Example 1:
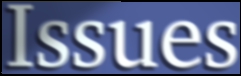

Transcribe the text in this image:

Issues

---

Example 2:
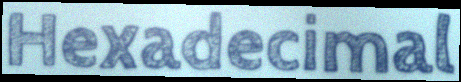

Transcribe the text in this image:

Hexadecimal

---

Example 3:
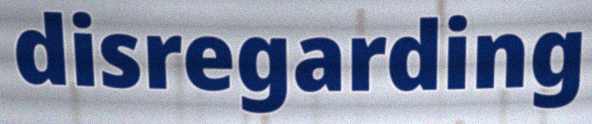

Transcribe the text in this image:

disregarding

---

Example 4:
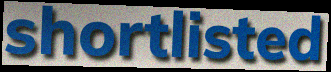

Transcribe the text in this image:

shortlisted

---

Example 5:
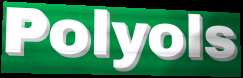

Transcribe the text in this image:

Polyols